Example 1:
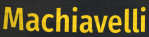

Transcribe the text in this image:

Machiavelli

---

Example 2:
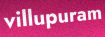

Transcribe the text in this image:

villupuram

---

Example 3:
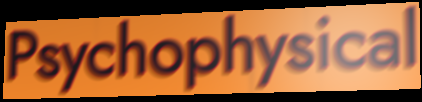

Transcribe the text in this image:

Psychophysical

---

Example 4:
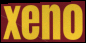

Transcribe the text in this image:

xeno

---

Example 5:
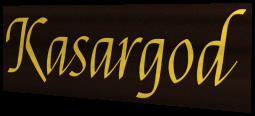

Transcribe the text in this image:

Kasargod